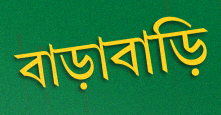
বাড়াবাড়ি